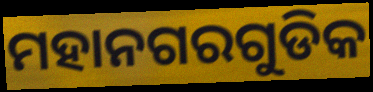
ମହାନଗରଗୁଡିକ